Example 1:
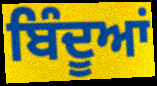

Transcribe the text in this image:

ਬਿੰਦੂਆਂ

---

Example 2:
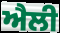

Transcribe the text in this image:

ਐਲੀ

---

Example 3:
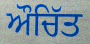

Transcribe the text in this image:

ਔਚਿੱਤ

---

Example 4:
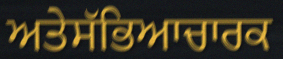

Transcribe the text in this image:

ਅਤੇਸੱਭਿਆਚਾਰਕ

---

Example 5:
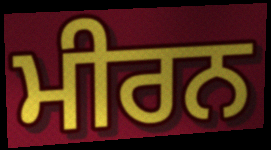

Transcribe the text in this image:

ਮੀਰਨ